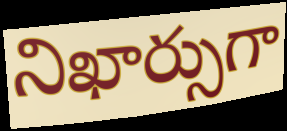
నిఖార్సుగా